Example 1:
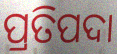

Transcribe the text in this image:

ପ୍ରତିପଦା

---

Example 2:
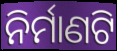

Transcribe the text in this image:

ନିର୍ମାଣଟି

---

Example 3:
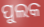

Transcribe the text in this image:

ପୁଲକ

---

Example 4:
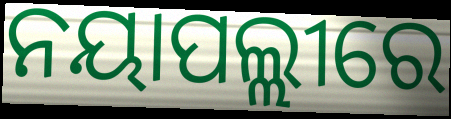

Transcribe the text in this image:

ନୟାପଲ୍ଲୀରେ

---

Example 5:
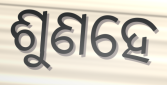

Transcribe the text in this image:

ଶୁଣହେ